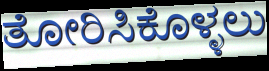
ತೋರಿಸಿಕೊಳ್ಳಲು